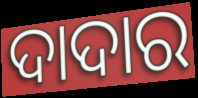
ଦାଦାର